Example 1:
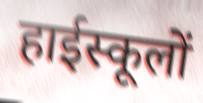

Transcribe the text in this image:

हाईस्कूलों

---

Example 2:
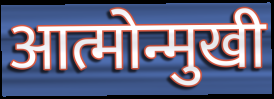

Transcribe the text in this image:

आत्मोन्मुखी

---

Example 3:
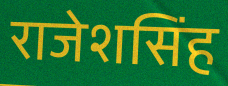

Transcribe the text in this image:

राजेशसिंह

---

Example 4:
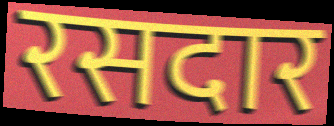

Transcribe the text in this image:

रसदार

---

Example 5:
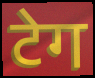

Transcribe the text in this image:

टेग